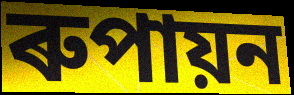
ৰুপায়ন